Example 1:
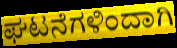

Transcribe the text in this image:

ಘಟನೆಗಳಿಂದಾಗಿ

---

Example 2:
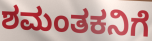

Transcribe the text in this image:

ಶಮಂತಕನಿಗೆ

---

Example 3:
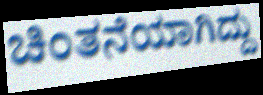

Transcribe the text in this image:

ಚಿಂತನೆಯಾಗಿದ್ದು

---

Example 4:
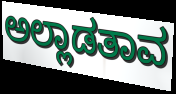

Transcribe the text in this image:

ಅಲ್ಲಾಡತಾವ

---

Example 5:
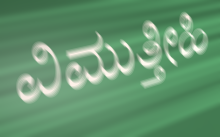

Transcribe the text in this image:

ವಿಮುತ್ತೀಹಿ